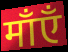
माँएँ